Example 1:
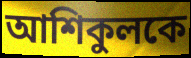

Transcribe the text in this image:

আশিকুলকে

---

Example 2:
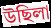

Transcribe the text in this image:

উছিলা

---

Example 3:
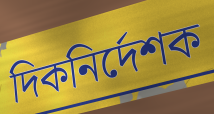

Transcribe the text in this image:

দিকনির্দেশক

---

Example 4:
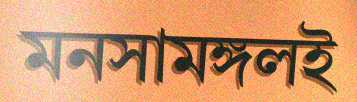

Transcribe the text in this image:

মনসামঙ্গলই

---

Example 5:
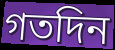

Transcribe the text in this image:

গতদিন